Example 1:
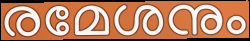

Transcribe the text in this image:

രമേശനും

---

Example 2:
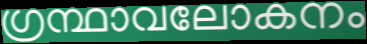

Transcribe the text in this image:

ഗ്രന്ഥാവലോകനം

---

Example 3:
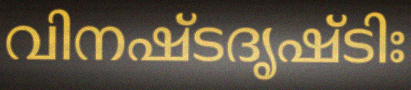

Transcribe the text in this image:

വിനഷ്ടദൃഷ്ടിഃ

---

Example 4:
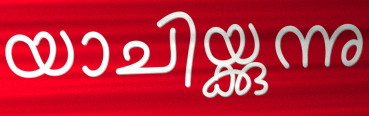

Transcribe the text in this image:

യാചിയ്ക്കുന്നു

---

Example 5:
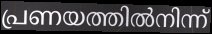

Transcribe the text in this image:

പ്രണയത്തിൽനിന്ന്